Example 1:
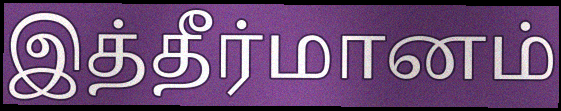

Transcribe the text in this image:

இத்தீர்மானம்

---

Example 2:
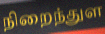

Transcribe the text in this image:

நிறைந்துள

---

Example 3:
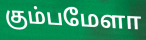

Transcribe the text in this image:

கும்பமேளா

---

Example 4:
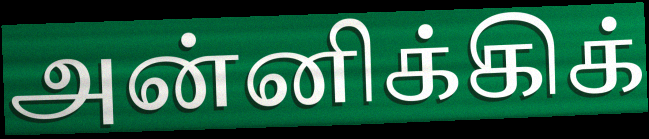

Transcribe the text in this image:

அன்னிக்கிக்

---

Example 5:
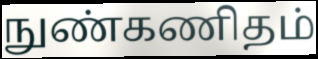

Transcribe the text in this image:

நுண்கணிதம்